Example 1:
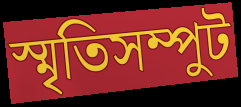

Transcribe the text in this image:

স্মৃতিসম্পুট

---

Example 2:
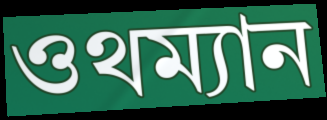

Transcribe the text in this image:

ওথম্যান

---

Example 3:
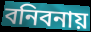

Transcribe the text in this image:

বনিবনায়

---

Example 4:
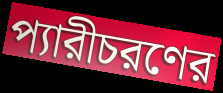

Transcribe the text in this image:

প্যারীচরণের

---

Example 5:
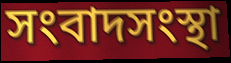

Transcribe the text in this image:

সংবাদসংস্থা